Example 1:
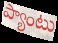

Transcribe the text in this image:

ప్యాంటు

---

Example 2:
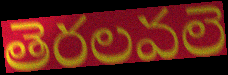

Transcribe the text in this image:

తెరలవలె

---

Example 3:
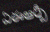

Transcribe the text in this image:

ఏఈఆర్బీ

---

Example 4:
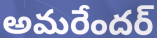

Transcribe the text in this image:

అమరేందర్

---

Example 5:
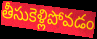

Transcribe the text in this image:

తీసుకెళ్లిపోవడం